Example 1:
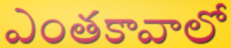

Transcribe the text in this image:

ఎంతకావాలో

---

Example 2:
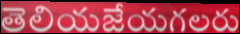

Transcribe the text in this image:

తెలియజేయగలరు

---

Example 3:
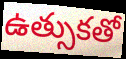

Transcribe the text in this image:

ఉత్సుకతో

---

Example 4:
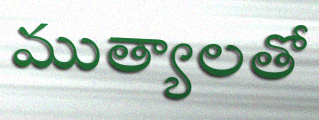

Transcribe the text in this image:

ముత్యాలతో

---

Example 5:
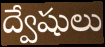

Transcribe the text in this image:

ద్వేషులు